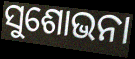
ସୁଶୋଭନା